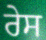
ਰੇਸ